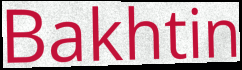
Bakhtin